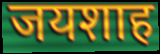
जयशाह